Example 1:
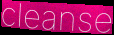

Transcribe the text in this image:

cleanse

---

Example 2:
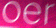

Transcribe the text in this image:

oer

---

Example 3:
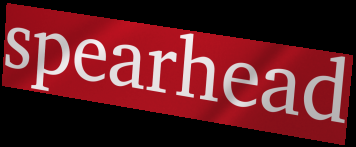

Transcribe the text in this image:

spearhead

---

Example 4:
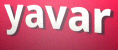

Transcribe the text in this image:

yavar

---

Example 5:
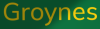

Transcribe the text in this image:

Groynes